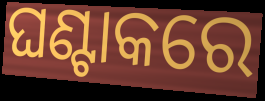
ଘଣ୍ଟାକରେ